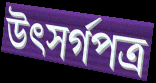
উৎসর্গপত্র